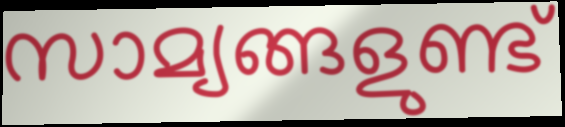
സാമ്യങ്ങളുണ്ട്